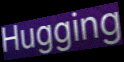
Hugging